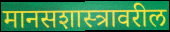
मानसशास्त्रावरील